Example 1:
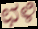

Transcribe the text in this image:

ಛಳಿ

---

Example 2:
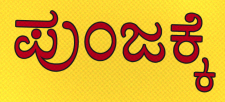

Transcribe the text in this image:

ಪುಂಜಕ್ಕೆ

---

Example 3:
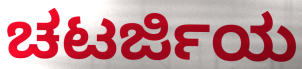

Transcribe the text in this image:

ಚಟರ್ಜಿಯ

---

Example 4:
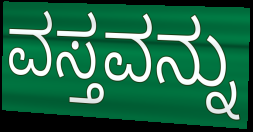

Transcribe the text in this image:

ವಸ್ತವನ್ನು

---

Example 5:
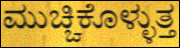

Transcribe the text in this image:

ಮುಚ್ಚಿಕೊಳ್ಳುತ್ತ